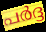
പർദ്ദ